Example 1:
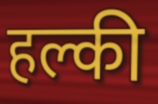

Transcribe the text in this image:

हल्‍की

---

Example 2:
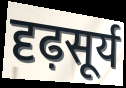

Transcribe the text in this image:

दृढ़सूर्य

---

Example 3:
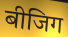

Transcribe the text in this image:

बीजिग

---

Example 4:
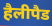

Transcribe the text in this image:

हैलीपैड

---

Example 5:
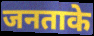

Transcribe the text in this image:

जनताके